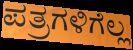
ಪತ್ರಗಳಿಗೆಲ್ಲ